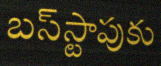
బస్‌స్టాపుకు